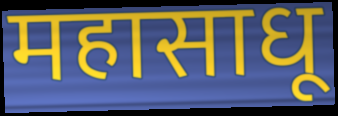
महासाधू